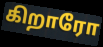
கிறாரோ